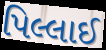
પિલ્લાઈ